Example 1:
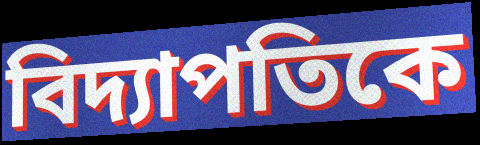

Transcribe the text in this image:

বিদ্যাপতিকে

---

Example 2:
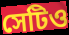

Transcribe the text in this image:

সেটিও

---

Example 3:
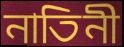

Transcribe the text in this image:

নাতিনী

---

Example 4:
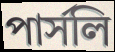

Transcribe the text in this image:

পার্সলি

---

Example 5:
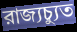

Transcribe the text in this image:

রাজ্যচ্যুত